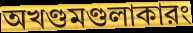
অখণ্ডমণ্ডলাকারং